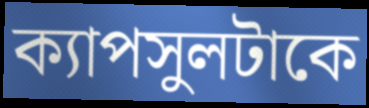
ক্যাপসুলটাকে